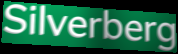
Silverberg